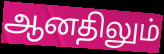
ஆனதிலும்